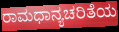
ರಾಮಧಾನ್ಯಚರಿತೆಯ